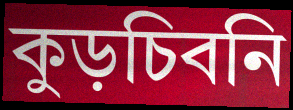
কুড়চিবনি